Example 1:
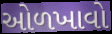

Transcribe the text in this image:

ઓળખાવો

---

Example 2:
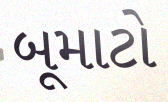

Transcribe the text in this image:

બૂમાટો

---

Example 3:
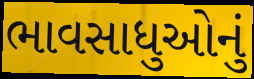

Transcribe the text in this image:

ભાવસાધુઓનું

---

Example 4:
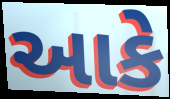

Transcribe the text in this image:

આકે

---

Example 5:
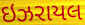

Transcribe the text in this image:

ઇઝરાયલ